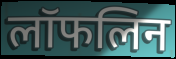
लॉफलिन